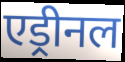
एड्रीनल